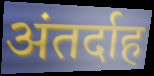
अंतर्दाह